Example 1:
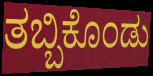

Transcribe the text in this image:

ತಬ್ಬಿಕೊಂಡು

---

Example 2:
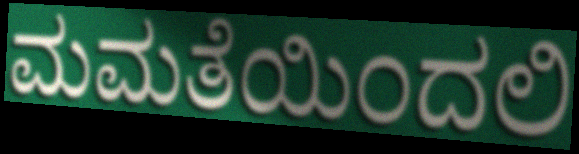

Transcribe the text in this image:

ಮಮತೆಯಿಂದಲಿ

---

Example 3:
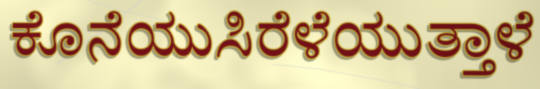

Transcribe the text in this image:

ಕೊನೆಯುಸಿರೆಳೆಯುತ್ತಾಳೆ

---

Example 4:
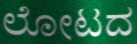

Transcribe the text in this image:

ಲೋಟದ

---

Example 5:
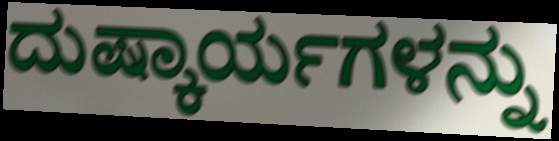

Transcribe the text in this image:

ದುಷ್ಕಾರ್ಯಗಳನ್ನು